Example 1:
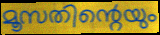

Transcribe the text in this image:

മൂസതിന്റെയും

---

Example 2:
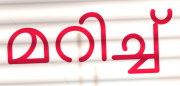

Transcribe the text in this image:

മറിച്ച്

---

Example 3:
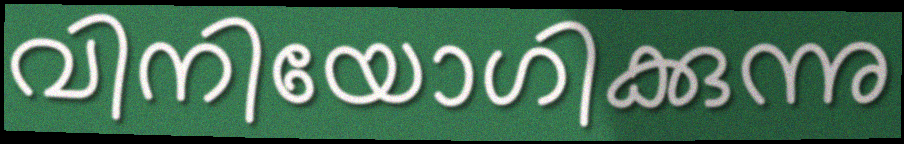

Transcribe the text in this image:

വിനിയോഗിക്കുന്നു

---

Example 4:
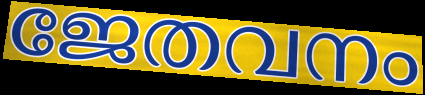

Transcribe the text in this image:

ജേതവനം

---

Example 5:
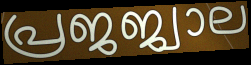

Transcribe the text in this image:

പ്രജജ്വാല